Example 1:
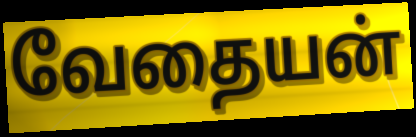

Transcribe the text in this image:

வேதையன்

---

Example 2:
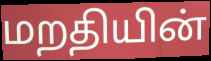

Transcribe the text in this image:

மறதியின்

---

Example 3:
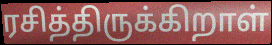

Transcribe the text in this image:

ரசித்திருக்கிறாள்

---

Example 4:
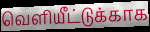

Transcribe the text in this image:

வெளியீட்டுக்காக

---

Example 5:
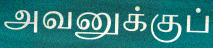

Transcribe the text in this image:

அவனுக்குப்